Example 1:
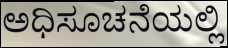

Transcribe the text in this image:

ಅಧಿಸೂಚನೆಯಲ್ಲಿ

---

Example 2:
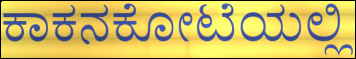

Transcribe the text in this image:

ಕಾಕನಕೋಟೆಯಲ್ಲಿ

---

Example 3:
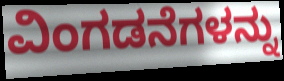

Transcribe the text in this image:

ವಿಂಗಡನೆಗಳನ್ನು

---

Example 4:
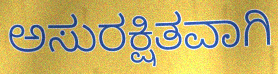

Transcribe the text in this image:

ಅಸುರಕ್ಷಿತವಾಗಿ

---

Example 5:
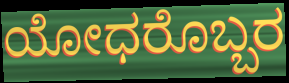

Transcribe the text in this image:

ಯೋಧರೊಬ್ಬರ